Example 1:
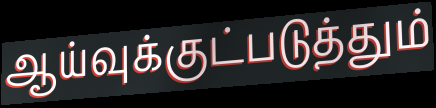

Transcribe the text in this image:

ஆய்வுக்குட்படுத்தும்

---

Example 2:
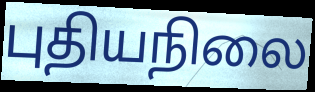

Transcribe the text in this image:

புதியநிலை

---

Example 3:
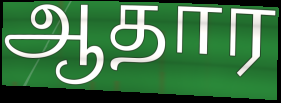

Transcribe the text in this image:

ஆதார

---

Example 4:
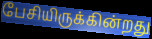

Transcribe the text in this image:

பேசியிருக்கின்றது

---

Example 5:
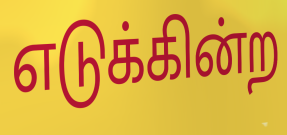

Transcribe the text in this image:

எடுக்கின்ற